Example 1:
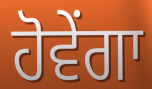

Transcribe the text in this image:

ਹੋਵੇਂਗਾ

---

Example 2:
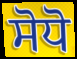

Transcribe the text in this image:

ਸੋਧੋ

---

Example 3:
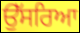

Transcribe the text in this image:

ਉੱਸਰਿਆ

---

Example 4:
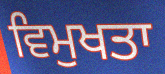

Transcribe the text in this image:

ਵਿਮੁਖਤਾ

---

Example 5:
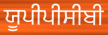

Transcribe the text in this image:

ਯੂਪੀਪੀਸੀਬੀ